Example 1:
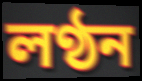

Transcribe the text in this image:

লণ্ঠন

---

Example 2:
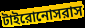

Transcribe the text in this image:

টাইরোনোসরাস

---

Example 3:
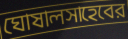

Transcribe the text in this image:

ঘোষালসাহেবের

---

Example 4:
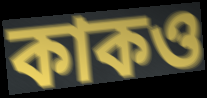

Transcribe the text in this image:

কাকও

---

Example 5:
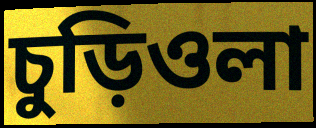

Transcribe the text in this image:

চুড়িওলা